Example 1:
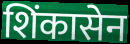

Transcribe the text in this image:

शिंकासेन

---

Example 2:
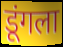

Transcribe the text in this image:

डूंगला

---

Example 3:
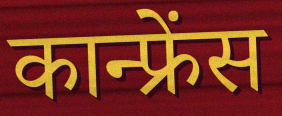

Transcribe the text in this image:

कान्फ्रेंस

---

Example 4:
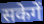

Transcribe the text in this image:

सकेगें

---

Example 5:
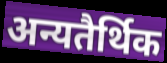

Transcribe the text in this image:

अन्यतैर्थिक